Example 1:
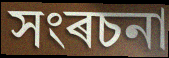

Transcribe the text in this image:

সংৰচনা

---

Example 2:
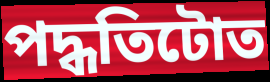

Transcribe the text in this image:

পদ্ধতিটোত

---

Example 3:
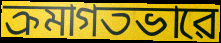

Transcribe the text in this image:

ক্ৰমাগতভাৱে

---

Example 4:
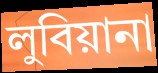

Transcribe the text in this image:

লুবিয়ানা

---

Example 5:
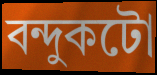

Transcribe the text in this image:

বন্দুকটো